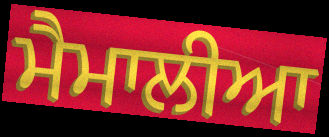
ਮੈਮਾਲੀਆ